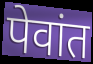
पेवांत